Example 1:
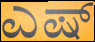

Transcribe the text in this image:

ಎಷ್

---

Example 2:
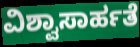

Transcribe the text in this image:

ವಿಶ್ವಾಸಾರ್ಹತೆ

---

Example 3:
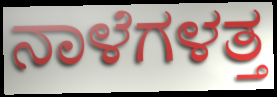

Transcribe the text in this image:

ನಾಳೆಗಳತ್ತ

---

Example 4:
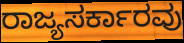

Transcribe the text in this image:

ರಾಜ್ಯಸರ್ಕಾರವು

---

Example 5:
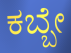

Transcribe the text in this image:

ಕಬ್ಬೇ